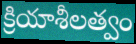
క్రియాశీలత్వం